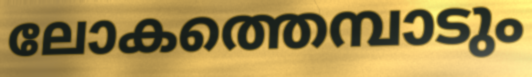
ലോകത്തെമ്പാടും